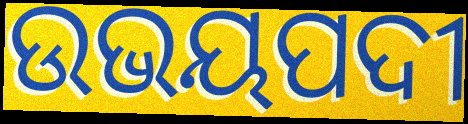
ଉଭୟପଦୀ